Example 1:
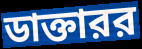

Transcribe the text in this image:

ডাক্তারর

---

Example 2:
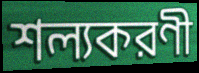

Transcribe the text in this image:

শল্যকরণী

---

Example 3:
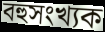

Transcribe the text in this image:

বহুসংখ্যক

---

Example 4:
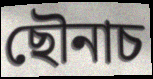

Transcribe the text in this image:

ছৌনাচ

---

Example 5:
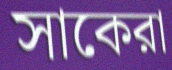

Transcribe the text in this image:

সাকেরা